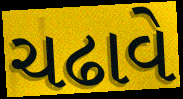
ચઢાવે